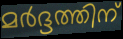
മർദ്ദത്തിന്